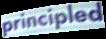
principled